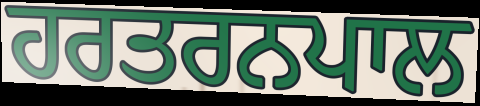
ਹਰਤਰਨਪਾਲ